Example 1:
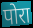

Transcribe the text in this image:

पोरा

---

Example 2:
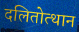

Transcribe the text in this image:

दलितोत्थान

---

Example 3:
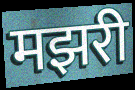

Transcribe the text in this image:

मझरी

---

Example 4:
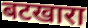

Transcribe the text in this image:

बटखारा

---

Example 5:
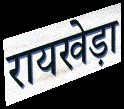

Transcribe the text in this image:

रायखेड़ा